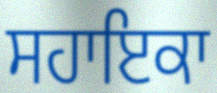
ਸਹਾਇਕਾ